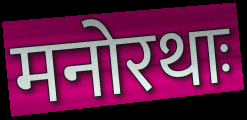
मनोरथाः